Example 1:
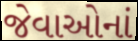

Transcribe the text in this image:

જેવાઓનાં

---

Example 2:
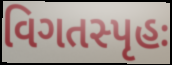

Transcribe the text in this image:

વિગતસ્પૃહઃ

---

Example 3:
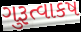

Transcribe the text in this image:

ગુરૂત્વાકષ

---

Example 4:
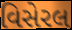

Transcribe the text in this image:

વિસેરલ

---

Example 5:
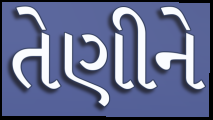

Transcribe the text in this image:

તેણીને